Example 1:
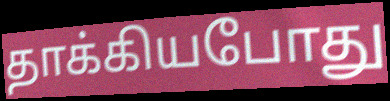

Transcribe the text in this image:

தாக்கியபோது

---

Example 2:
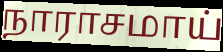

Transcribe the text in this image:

நாராசமாய்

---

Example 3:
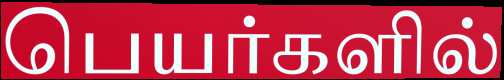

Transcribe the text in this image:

பெயர்களில்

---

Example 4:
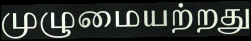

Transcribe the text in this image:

முழுமையற்றது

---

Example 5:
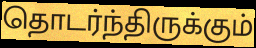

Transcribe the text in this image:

தொடர்ந்திருக்கும்